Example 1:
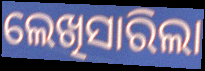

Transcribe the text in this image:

ଲେଖିସାରିଲା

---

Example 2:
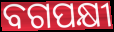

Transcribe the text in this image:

ବଗପକ୍ଷୀ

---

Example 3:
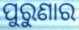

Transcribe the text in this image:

ପୁରୁଣାର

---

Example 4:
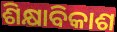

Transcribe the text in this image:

ଶିକ୍ଷାବିକାଶ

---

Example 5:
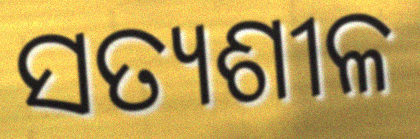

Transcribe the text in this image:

ସତ୍ୟଶୀଳ